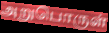
அறுபொருள்